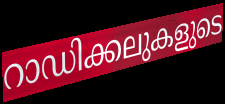
റാഡിക്കലുകളുടെ